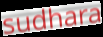
sudhara